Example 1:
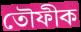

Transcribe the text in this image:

তৌফীক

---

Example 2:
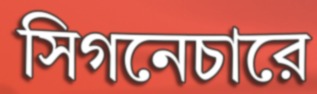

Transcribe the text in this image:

সিগনেচারে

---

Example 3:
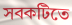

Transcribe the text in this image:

সবকটিতে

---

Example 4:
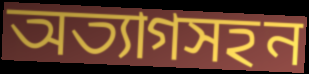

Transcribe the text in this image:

অত্যাগসহন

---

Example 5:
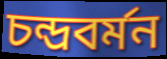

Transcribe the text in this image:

চন্দ্রবর্মন